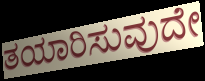
ತಯಾರಿಸುವುದೇ